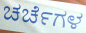
ಚರ್ಚೆಗಳ